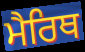
ਮੈਰਿਥ